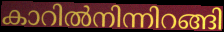
കാറിൽനിന്നിറങ്ങി